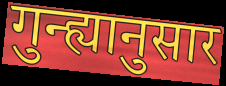
गुन्ह्यानुसार